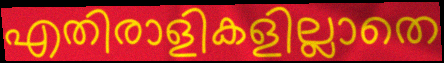
എതിരാളികളില്ലാതെ